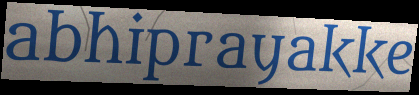
abhiprayakke